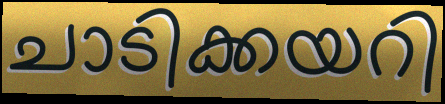
ചാടിക്കയറി